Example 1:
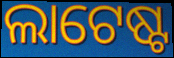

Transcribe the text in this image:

ଲାଟେଷ୍ଟ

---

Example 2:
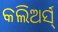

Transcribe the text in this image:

କଲିଅର୍ସ୍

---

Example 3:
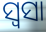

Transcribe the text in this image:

ସ୍ୱସା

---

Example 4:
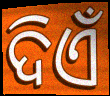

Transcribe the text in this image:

ଦିଏଁ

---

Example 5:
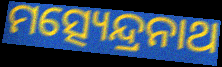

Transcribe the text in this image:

ମତ୍ସ୍ୟେନ୍ଦ୍ରନାଥ